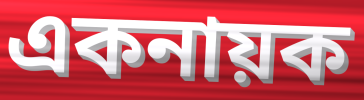
একনায়ক